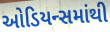
ઓડિયન્સમાંથી